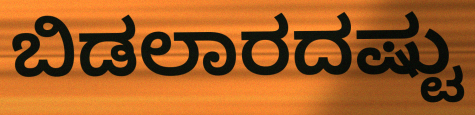
ಬಿಡಲಾರದಷ್ಟು